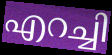
എറച്ചി